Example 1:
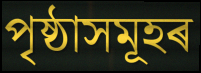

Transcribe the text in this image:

পৃষ্ঠাসমূহৰ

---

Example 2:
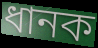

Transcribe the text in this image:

ধানক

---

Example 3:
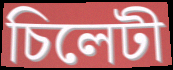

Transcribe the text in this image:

চিলেটী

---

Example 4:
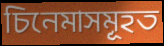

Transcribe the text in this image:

চিনেমাসমূহত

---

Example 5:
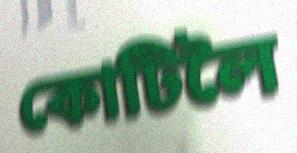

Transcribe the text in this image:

কোটিলৈ